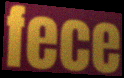
fece